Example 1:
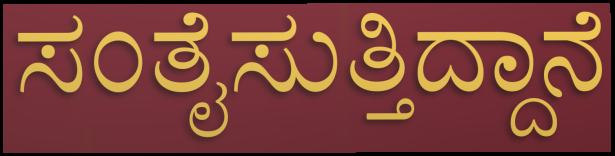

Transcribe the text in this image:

ಸಂತೈಸುತ್ತಿದ್ದಾನೆ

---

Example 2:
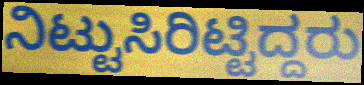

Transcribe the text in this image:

ನಿಟ್ಟುಸಿರಿಟ್ಟಿದ್ದರು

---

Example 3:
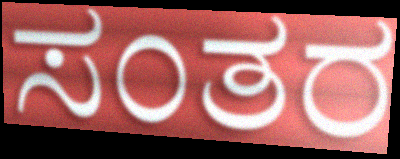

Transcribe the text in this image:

ಸಂತರ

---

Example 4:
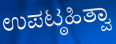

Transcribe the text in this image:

ಉಪಟ್ಠಹಿತ್ವಾ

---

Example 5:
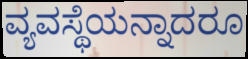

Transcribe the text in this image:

ವ್ಯವಸ್ಥೆಯನ್ನಾದರೂ